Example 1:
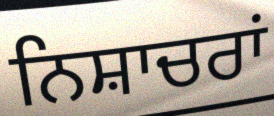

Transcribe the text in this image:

ਨਿਸ਼ਾਚਰਾਂ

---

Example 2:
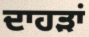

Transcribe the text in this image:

ਦਾਹੜਾਂ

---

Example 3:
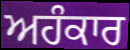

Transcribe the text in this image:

ਅਹੰਕਾਰ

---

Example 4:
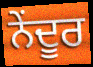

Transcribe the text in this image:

ਨੇਂਦੂਰ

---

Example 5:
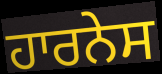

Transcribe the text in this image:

ਹਾਰਨੇਸ